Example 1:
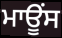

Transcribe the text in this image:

ਮਾਊਂਸ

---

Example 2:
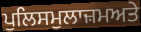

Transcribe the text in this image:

ਪੁਲਿਸਮੁਲਾਜ਼ਮਅਤੇ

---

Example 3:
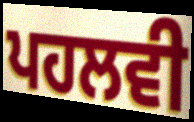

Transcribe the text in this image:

ਪਹਲਵੀ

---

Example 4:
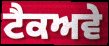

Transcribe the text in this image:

ਟੈਕਅਵੇ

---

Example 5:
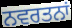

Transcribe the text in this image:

ਨਵਰਤਨਾਂ